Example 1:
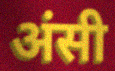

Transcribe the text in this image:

अंसी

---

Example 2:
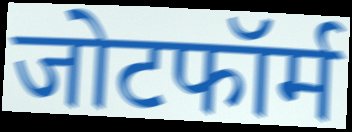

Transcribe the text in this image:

जोटफॉर्म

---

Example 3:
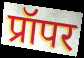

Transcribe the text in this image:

प्रॉपर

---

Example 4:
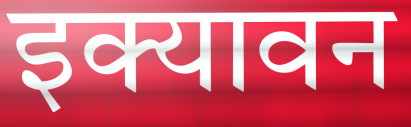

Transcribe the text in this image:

इक्‍यावन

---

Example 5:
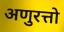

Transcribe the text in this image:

अणुरत्तो